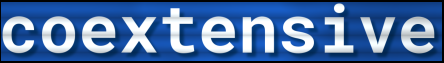
coextensive